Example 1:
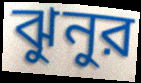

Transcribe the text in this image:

ঝুনুর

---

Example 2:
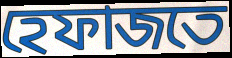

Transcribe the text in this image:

হেফাজতে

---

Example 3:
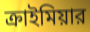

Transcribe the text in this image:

ক্রাইমিয়ার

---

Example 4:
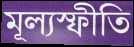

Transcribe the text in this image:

মূল্যস্ফীতি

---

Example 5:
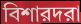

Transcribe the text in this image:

বিশারদরা